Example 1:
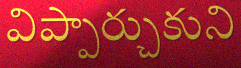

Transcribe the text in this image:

విప్పార్చుకుని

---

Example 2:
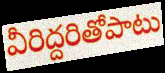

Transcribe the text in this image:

వీరిద్దరితోపాటు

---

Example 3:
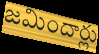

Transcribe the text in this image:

జమిందార్లు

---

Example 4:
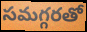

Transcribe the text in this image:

సమగ్గరతో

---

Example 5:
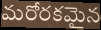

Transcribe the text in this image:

మరోరకమైన